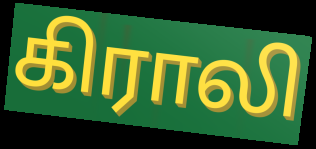
கிராலி